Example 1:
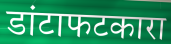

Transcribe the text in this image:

डांटाफटकारा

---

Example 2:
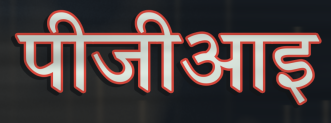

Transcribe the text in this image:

पीजीआइ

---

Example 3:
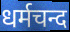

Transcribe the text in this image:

धर्मचन्द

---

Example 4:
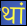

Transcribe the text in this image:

थां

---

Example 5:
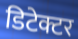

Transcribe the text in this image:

डिटेक्टर